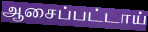
ஆசைப்பட்டாய்